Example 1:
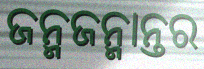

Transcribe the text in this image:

ଜନ୍ମଜନ୍ମାନ୍ତର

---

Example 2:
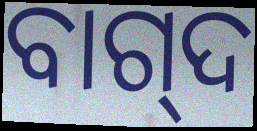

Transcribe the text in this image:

ବାଗ୍‌ଦ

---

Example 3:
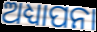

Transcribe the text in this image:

ଅଧ୍ଯାପନା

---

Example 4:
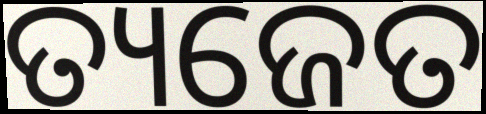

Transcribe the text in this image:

ତ୍ୟଜେତ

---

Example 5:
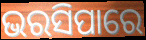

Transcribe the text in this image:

ଭରସିପାରେ